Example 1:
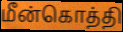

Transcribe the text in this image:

மீன்கொத்தி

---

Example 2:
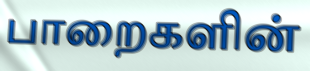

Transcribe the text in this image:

பாறைகளின்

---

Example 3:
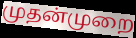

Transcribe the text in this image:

முதன்முறை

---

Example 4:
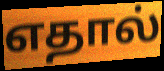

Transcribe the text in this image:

எதால்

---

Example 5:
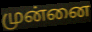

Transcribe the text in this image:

முன்னை